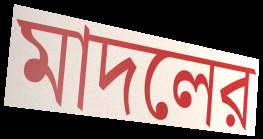
মাদলের